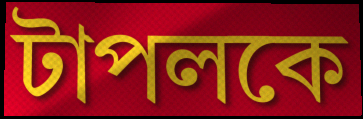
টাপলকে